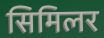
सिमिलर